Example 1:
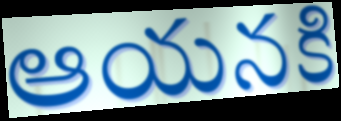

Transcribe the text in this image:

ఆయనకి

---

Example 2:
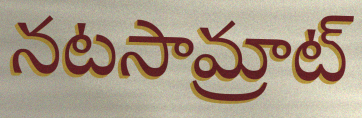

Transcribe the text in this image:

నటసామ్రాట్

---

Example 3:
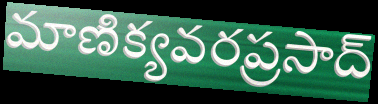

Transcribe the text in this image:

మాణిక్యవరప్రసాద్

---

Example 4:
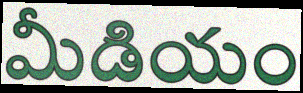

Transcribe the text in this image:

మీడియం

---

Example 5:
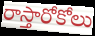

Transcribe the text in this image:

రాస్తారోకోలు